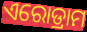
ଏରୋଡ୍ରାମ